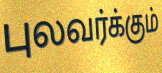
புலவர்க்கும்